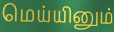
மெய்யினும்